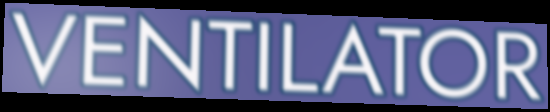
VENTILATOR